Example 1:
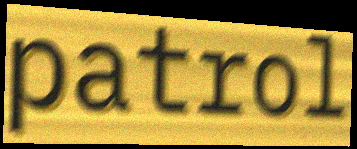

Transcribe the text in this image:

patrol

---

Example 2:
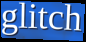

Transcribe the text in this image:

glitch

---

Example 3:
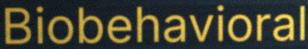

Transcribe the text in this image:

Biobehavioral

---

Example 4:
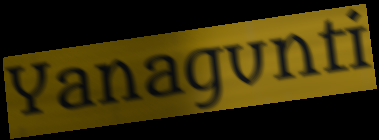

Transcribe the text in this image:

Yanagunti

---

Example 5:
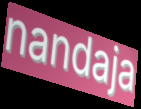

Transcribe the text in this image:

nandaja